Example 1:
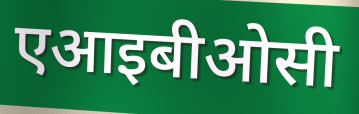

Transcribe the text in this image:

एआइबीओसी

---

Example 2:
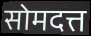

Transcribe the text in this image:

सोमदत्त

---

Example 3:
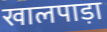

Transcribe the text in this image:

खालपाड़ा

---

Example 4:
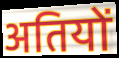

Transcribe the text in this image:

अतियों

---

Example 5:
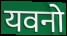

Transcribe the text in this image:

यवनो